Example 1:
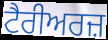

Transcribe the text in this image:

ਟੈਰੀਅਰਜ਼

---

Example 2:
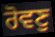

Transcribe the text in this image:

ਰੋਵਣੁ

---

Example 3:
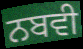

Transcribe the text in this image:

ਨਬਵੀ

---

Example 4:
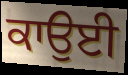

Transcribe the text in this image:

ਕਾਉਈ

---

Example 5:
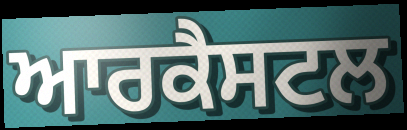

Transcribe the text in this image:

ਆਰਕੈਸਟਲ